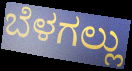
ಬೆಳಗಲ್ಲು